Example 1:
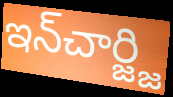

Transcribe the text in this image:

ఇన్‌చార్జ్జి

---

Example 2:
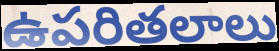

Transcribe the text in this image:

ఉపరితలాలు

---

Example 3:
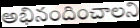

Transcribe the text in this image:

అభినందించాలని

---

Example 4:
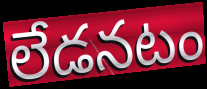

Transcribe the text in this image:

లేడనటం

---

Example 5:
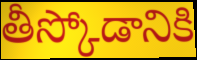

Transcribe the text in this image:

తీస్కోడానికి